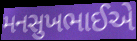
મનસુખભાઈએ